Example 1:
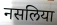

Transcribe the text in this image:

नसलिया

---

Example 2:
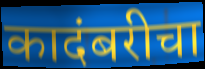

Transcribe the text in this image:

कादंबरीचा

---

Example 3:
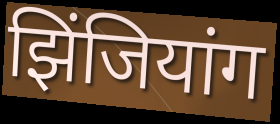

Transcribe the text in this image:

झिंजियांग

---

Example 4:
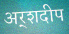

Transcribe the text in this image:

अर्शदीप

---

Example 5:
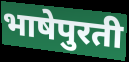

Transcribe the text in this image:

भाषेपुरती